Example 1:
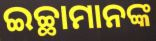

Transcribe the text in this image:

ଇଚ୍ଛାମାନଙ୍କ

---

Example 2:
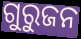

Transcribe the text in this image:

ଗୁରୁଜନ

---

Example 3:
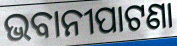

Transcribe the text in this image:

ଭବାନୀପାଟଣା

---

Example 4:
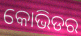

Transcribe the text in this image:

କୋଭିଡର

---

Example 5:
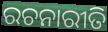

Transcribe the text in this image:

ରଚନାରୀତି